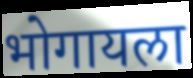
भोगायला